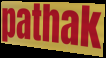
pathak